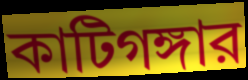
কাটিগঙ্গার